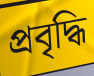
প্রবৃদ্ধি